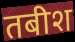
तबीश